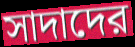
সাদাদের